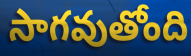
సాగవుతోంది